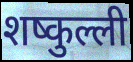
शष्कुल्ली